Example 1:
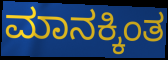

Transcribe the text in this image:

ಮಾನಕ್ಕಿಂತ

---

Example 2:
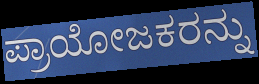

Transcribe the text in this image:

ಪ್ರಾಯೋಜಕರನ್ನು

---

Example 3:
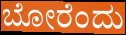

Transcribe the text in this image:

ಬೋರೆಂದು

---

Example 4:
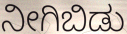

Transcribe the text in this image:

ನೀಗಿಬಿಡು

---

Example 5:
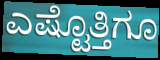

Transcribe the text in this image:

ಎಷ್ಟೊತ್ತಿಗೂ